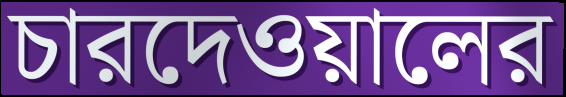
চারদেওয়ালের